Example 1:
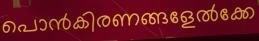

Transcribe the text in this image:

പൊൻകിരണങ്ങളേൽക്കേ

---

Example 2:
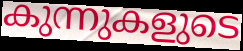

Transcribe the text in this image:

കുന്നുകളുടെ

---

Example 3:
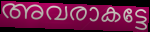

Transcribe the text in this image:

അവരാകട്ടേ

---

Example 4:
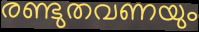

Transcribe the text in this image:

രണ്ടുതവണയും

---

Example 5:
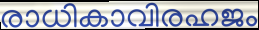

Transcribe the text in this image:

രാധികാവിരഹജം